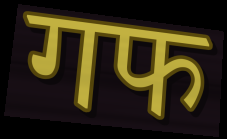
गफ